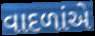
વાદળાંએ